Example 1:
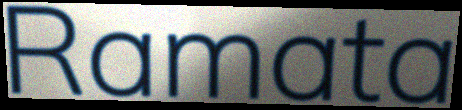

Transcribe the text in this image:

Ramata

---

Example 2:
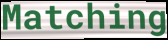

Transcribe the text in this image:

Matching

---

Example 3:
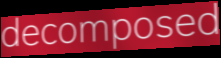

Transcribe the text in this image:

decomposed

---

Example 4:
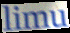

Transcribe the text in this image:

limu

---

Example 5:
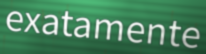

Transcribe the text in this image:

exatamente